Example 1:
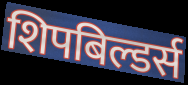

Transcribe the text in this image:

शिपबिल्डर्स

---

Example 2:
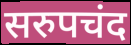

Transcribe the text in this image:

सरुपचंद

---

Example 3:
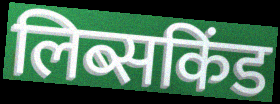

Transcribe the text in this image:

लिब्सकिंड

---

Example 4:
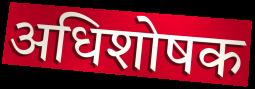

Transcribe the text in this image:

अधिशोषक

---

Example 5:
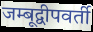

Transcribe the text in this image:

जम्बूद्वीपवर्ती